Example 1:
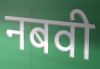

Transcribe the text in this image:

नबवी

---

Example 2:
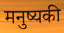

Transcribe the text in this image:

मनुष्यकी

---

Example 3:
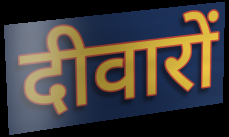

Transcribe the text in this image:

दीवारों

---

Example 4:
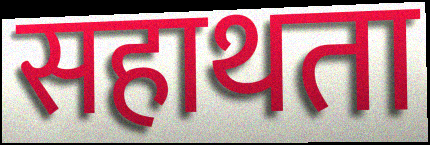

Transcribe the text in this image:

सहाथता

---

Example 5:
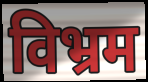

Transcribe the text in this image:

विभ्रम